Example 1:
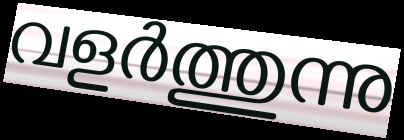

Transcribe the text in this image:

വളർത്തുന്നു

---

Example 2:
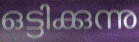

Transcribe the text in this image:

ഒട്ടിക്കുന്നു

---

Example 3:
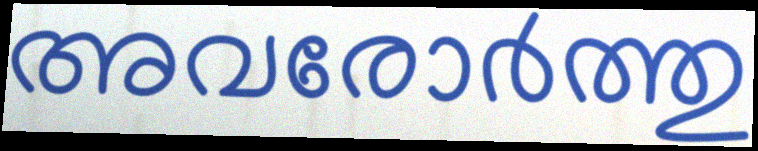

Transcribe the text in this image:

അവരോർത്തു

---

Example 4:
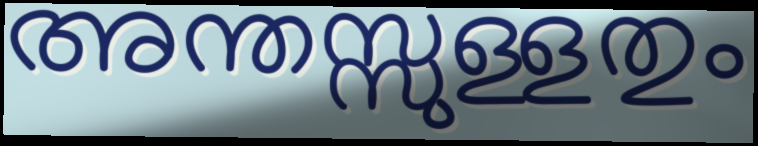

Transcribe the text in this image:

അന്തസ്സുള്ളതും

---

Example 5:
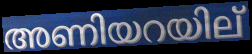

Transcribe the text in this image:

അണിയറയില്